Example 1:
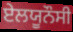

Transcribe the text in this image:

ਏਲਯੂਨੌਸੀ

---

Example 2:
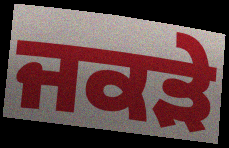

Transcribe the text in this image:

ਜਕੜੇ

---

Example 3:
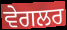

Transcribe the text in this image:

ਵੇਗਲਰ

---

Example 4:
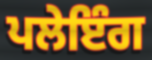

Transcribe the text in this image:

ਪਲੇਇੰਗ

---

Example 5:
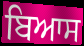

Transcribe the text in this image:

ਬਿਆਸ